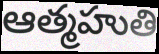
ఆత్మహుతి